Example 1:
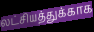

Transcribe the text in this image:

லட்சியத்துக்காக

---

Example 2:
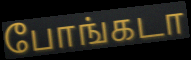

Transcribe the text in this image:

போங்கடா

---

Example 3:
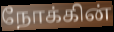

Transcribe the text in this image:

நோக்கின்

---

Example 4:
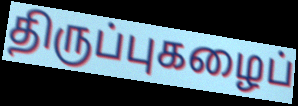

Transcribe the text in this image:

திருப்புகழைப்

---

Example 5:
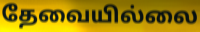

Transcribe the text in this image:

தேவையில்லை